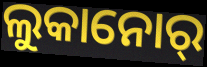
ଲୁକାନୋର୍